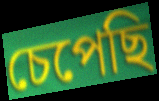
চেপেছি